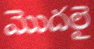
మొదలై